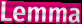
Lemma